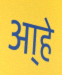
आ्हे